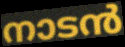
നാടൻ